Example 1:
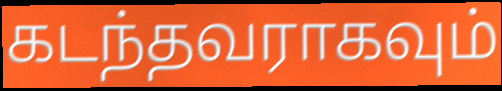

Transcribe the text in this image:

கடந்தவராகவும்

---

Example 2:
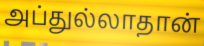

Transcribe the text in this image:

அப்துல்லாதான்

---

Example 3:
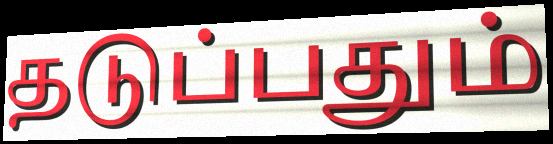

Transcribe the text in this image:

தடுப்பதும்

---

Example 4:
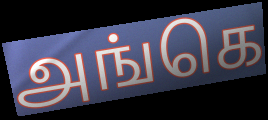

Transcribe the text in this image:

அங்கெ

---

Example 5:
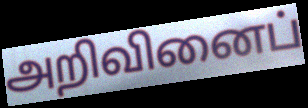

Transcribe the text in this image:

அறிவினைப்